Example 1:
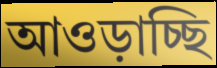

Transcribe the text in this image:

আওড়াচ্ছি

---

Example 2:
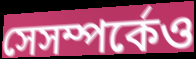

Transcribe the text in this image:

সেসম্পর্কেও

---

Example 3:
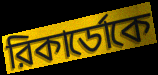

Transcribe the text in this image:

রিকার্ডোকে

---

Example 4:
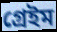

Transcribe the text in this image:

গ্রেইম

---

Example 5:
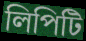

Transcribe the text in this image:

লিপিটি